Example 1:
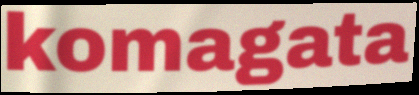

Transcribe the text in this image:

komagata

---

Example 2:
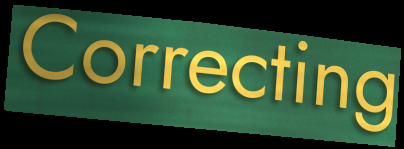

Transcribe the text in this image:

Correcting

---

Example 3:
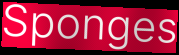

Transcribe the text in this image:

Sponges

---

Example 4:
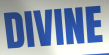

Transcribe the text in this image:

DIVINE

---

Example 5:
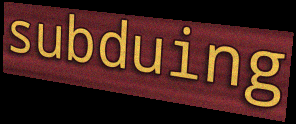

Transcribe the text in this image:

subduing